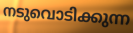
നടുവൊടിക്കുന്ന